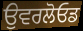
ਉਵਰਲੋਓਡ